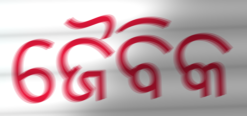
ଜୈବିକ